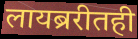
लायब्ररीतही